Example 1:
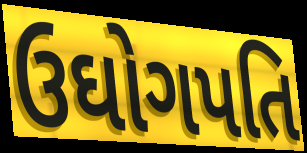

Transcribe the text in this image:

ઉઘોગપતિ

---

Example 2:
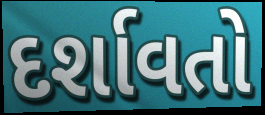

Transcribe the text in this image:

દર્શાવતો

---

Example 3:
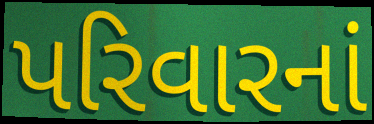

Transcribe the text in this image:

પરિવારનાં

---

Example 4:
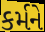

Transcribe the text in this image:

કર્મને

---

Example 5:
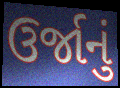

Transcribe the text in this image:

ઉર્જાનું